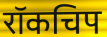
रॉकचिप